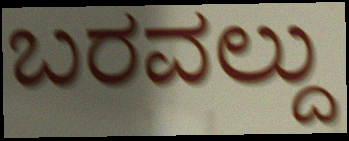
ಬರವಲ್ದು